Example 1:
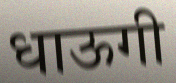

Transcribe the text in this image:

धाऊगी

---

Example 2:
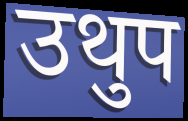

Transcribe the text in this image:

उथुप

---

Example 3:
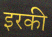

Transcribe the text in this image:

इरकी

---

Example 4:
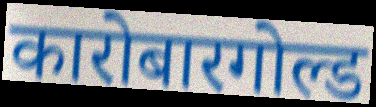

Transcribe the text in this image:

कारोबारगोल्ड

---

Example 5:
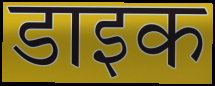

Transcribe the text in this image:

डाइक